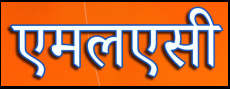
एमलएसी